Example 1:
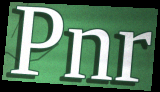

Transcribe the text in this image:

Pnr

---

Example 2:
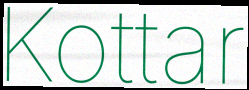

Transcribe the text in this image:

Kottar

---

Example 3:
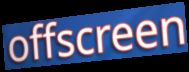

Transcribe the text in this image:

offscreen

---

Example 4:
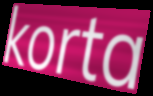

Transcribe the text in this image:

korta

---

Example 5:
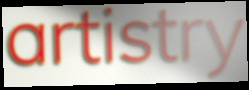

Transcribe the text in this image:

artistry